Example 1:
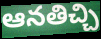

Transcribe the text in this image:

ఆనతిచ్చి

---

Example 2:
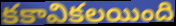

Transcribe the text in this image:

కకావికలయింది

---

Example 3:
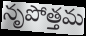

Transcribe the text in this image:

నృపోత్తమ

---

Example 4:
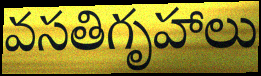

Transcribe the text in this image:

వసతిగృహాలు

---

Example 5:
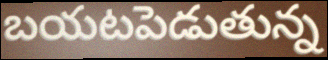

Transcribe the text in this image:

బయటపెడుతున్న